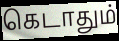
கெடாதும்